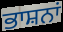
ਭਾਸ਼ਨਾਂ